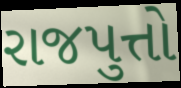
રાજપુત્તો